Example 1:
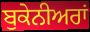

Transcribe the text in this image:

ਬੁਕੇਨੀਅਰਾਂ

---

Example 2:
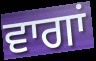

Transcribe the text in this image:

ਵਾਗਾਂ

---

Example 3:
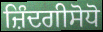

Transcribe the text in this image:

ਜ਼ਿੰਦਗੀਸੋਧੋ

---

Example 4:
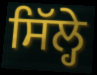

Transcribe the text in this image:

ਸਿੱਲ੍ਹੇ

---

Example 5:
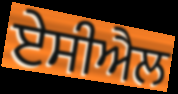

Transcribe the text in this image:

ਏਸੀਐਲ